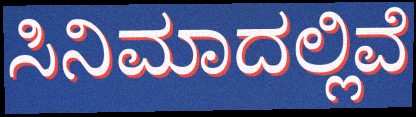
ಸಿನಿಮಾದಲ್ಲಿವೆ